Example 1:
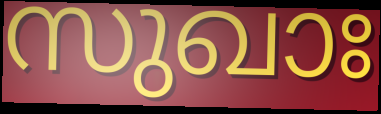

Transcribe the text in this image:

സുഖാഃ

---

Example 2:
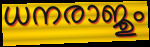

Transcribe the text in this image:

ധനരാജും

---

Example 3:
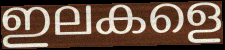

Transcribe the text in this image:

ഇലകളെ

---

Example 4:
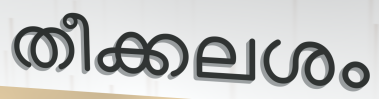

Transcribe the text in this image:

തീക്കലശം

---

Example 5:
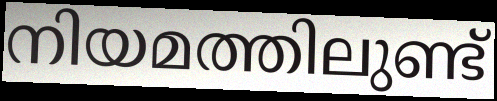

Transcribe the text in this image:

നിയമത്തിലുണ്ട്